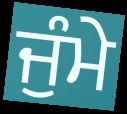
ਜੁੰਮੇ